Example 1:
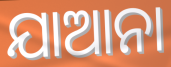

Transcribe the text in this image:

ଯାଆନା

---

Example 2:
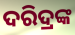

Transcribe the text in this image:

ଦରିଦ୍ରଙ୍କ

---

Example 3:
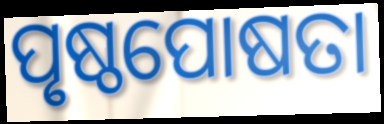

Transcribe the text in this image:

ପୃଷ୍ଠପୋଷତା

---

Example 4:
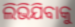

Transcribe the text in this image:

ଲିଭିଯିବାକୁ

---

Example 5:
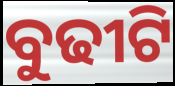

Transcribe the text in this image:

ବୁଢୀଟି